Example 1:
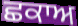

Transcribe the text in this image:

ਛਕਾਅ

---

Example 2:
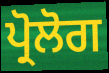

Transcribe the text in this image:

ਪ੍ਰੋਲੋਗ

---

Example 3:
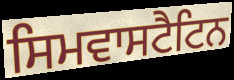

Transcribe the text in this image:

ਸਿਮਵਾਸਟੈਟਿਨ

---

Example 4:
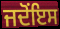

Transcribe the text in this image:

ਜਦੋਂਇਸ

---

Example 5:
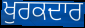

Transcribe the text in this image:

ਖੁਰਕਦਾਰ